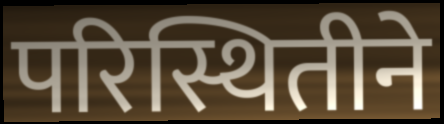
परिस्थितीने